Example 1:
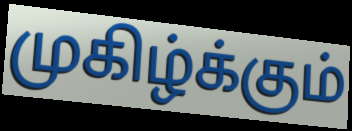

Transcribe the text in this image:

முகிழ்க்கும்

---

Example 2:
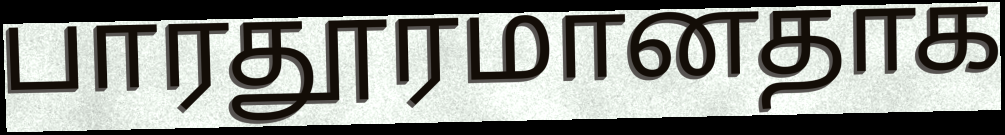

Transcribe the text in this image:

பாரதூரமானதாக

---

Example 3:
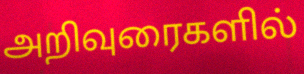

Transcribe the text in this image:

அறிவுரைகளில்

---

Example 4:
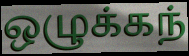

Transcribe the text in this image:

ஒழுக்கந்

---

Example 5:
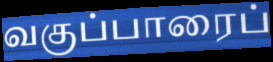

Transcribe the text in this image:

வகுப்பாரைப்